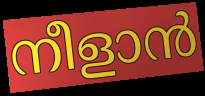
നീളാൻ